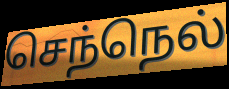
செந்நெல்